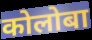
कोलोबा